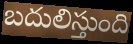
బదులిస్తుంది